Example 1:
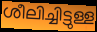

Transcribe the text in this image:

ശീലിച്ചിട്ടുള്ള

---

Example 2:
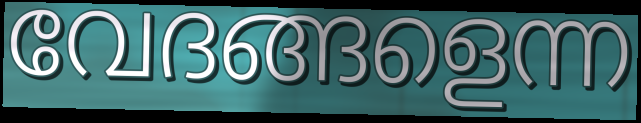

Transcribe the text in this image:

വേദങ്ങളെന്ന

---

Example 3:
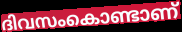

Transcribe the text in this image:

ദിവസംകൊണ്ടാണ്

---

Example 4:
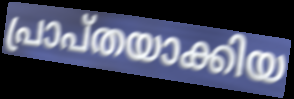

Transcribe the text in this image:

പ്രാപ്തയാക്കിയ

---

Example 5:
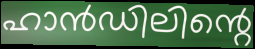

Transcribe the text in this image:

ഹാൻഡിലിന്റെ